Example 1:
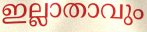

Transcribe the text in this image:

ഇല്ലാതാവും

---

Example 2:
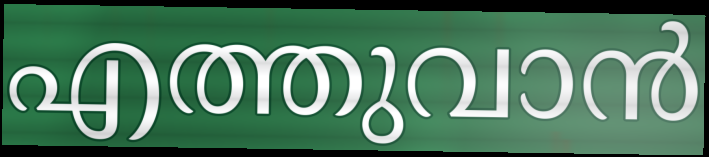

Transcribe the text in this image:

എത്തുവാൻ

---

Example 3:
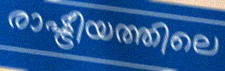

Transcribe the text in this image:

രാഷ്ട്രീയത്തിലെ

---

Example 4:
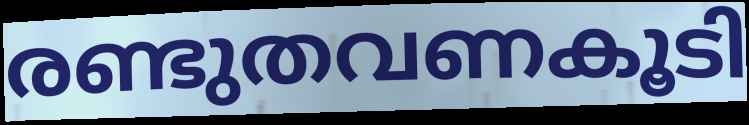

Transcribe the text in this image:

രണ്ടുതവണകൂടി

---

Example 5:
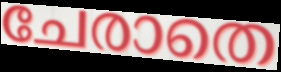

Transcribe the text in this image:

ചേരാതെ